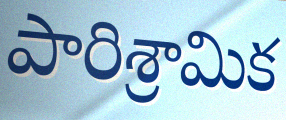
పారిశ్రామిక